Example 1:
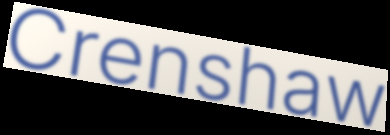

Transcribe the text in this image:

Crenshaw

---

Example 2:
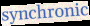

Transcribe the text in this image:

synchronic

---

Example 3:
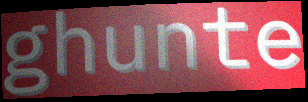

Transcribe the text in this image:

ghunte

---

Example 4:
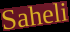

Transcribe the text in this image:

Saheli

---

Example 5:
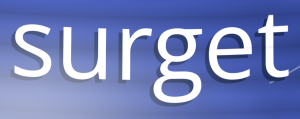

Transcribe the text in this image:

surget